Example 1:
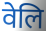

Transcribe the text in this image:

वेलि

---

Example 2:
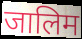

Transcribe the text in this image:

जालिम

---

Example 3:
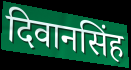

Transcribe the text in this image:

दिवानसिंह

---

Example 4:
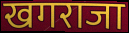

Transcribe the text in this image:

खगराजा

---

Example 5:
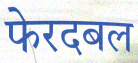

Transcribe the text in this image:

फेरदबल